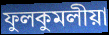
ফুলকুমলীয়া